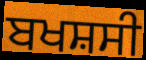
ਬਖਸ਼ਸੀ